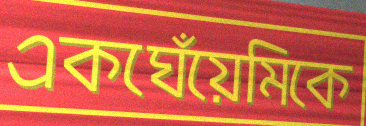
একঘেঁয়েমিকে